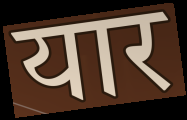
यार